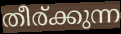
തീര്ക്കുന്ന